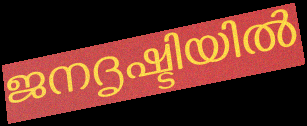
ജനദൃഷ്ടിയിൽ